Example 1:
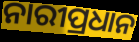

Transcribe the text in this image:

ନାରୀପ୍ରଧାନ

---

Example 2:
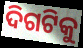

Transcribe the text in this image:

ଦିଗଟିକୁ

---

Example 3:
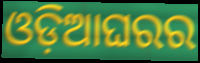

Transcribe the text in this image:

ଓଡ଼ିଆଘରର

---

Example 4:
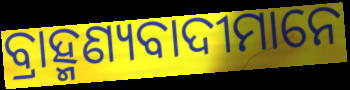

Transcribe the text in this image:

ବ୍ରାହ୍ମଣ୍ୟବାଦୀମାନେ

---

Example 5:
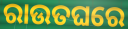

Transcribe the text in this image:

ରାଉତଘରେ